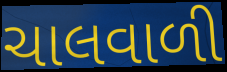
ચાલવાળી